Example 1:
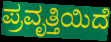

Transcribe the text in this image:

ಪ್ರವೃತ್ತಿಯಿದೆ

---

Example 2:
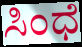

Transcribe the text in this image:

ಸಿಂಧೆ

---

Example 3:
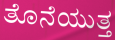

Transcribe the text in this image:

ತೊನೆಯುತ್ತ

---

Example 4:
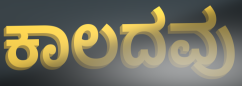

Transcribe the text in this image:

ಕಾಲದವು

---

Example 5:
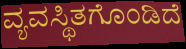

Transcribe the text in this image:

ವ್ಯವಸ್ಥಿತಗೊಂಡಿದೆ